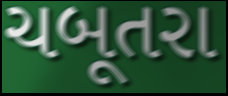
ચબૂતરા